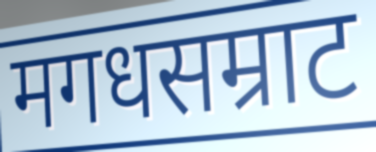
मगधसम्राट